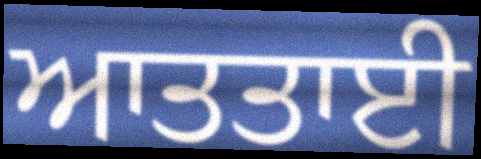
ਆਤਤਾਈ